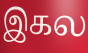
இகல